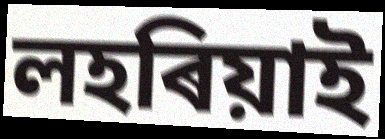
লহৰিয়াই